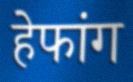
हेफांग